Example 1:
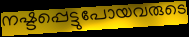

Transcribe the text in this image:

നഷ്ടപ്പെട്ടുപോയവരുടെ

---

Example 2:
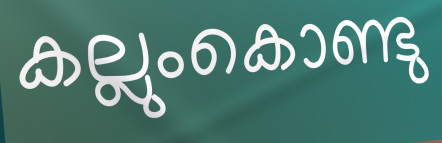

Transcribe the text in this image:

കല്ലുംകൊണ്ടു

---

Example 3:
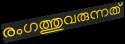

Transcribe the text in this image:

രംഗത്തുവരുന്നത്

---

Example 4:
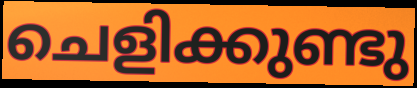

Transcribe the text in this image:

ചെളിക്കുണ്ടു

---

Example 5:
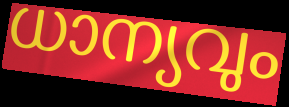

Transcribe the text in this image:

ധാന്യവും